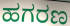
ಹಗರಣ